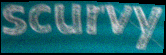
scurvy